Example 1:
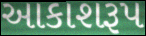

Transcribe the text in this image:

આકાશરૂપ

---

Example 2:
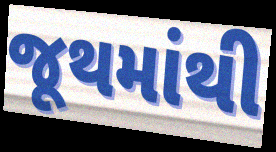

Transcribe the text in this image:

જૂથમાંથી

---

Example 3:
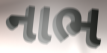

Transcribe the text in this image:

નાભ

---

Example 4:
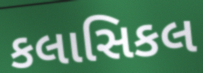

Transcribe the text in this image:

કલાસિકલ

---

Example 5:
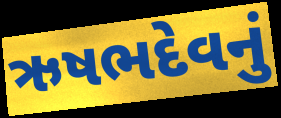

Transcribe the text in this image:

ઋષભદેવનું